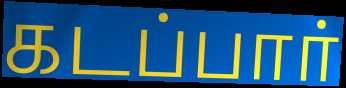
கடப்பார்